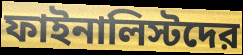
ফাইনালিস্টদের